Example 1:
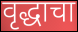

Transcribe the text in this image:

वृद्धाचा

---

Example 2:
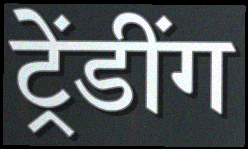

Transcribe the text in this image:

ट्रेंडींग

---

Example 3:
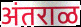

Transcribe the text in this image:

अंतराळ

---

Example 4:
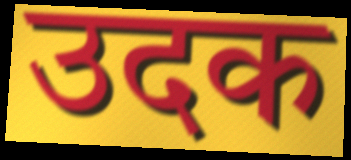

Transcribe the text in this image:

उदक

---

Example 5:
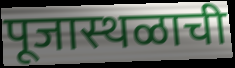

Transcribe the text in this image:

पूजास्थळाची